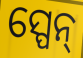
ସ୍ପେନ୍